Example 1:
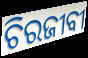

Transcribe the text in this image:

ଚିରଜୀବୀ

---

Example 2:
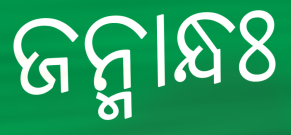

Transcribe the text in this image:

ଜନ୍ମାନ୍ଧଃ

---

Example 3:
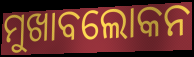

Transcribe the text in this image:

ମୁଖାବଲୋକନ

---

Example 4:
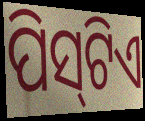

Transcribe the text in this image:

ପିସ୍‌ଟିଏ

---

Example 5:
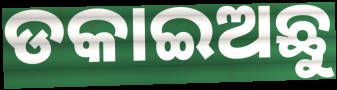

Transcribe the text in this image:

ଡକାଇଅଛୁ